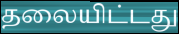
தலையிட்டது